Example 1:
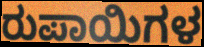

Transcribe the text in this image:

ರುಪಾಯಿಗಳ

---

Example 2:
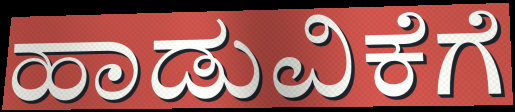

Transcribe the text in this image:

ಹಾಡುವಿಕೆಗೆ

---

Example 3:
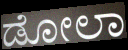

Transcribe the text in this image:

ಡೋಲಾ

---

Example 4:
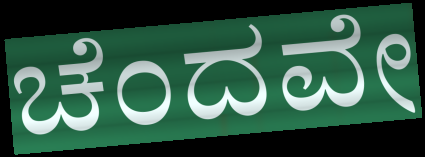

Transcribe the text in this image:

ಚೆಂದವೇ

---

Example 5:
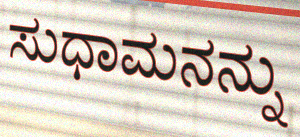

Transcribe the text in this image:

ಸುಧಾಮನನ್ನು